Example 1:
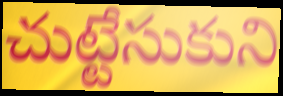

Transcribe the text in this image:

చుట్టేసుకుని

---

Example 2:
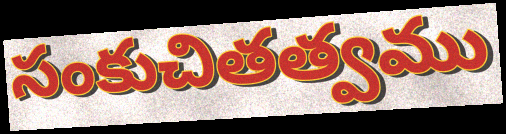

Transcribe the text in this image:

సంకుచితత్వము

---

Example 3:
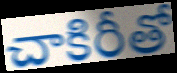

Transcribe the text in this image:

చాకిరీతో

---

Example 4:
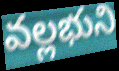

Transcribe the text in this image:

వల్లభుని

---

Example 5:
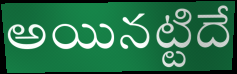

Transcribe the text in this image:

అయినట్టిదే